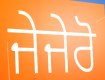
ਜੇਜੇਰੋ